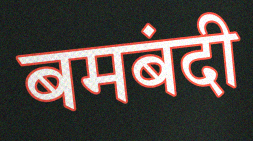
बमबंदी